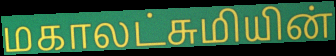
மகாலட்சுமியின்